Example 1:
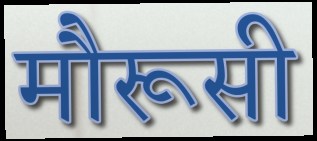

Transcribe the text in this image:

मौरूसी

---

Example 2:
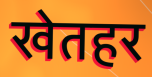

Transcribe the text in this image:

खेतहर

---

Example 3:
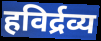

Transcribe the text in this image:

हविर्द्रव्य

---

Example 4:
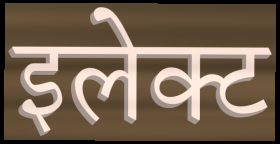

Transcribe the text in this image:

इलेक्ट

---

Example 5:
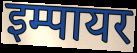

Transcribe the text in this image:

इम्पायर